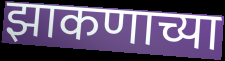
झाकणाच्या